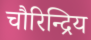
चौरिन्द्रिय